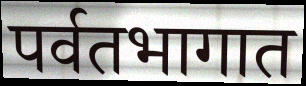
पर्वतभागात